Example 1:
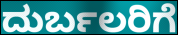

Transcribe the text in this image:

ದುರ್ಬಲರಿಗೆ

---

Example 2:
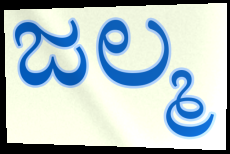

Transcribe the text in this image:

ಜಲ್ಮ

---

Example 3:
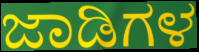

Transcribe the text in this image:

ಜಾಡಿಗಳ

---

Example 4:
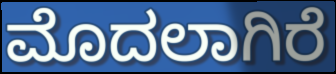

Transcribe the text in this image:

ಮೊದಲಾಗಿರೆ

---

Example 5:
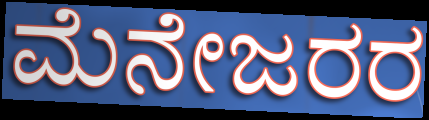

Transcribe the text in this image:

ಮೆನೇಜರರ